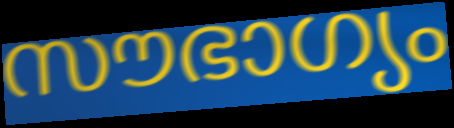
സൗഭാഗ്യം